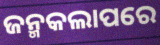
ଜନ୍ମକଲାପରେ